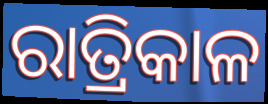
ରାତ୍ରିକାଳ